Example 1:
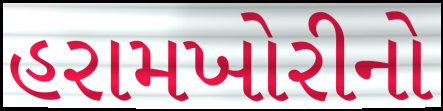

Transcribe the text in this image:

હરામખોરીનો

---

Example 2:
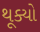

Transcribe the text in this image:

થૂક્યો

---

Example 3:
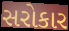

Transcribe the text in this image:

સરોકાર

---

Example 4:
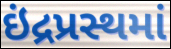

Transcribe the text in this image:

ઇંદ્રપ્રસ્થમાં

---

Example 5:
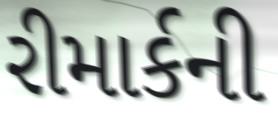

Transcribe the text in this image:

રીમાર્કની